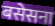
बसेसना